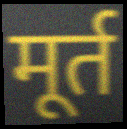
मूर्त